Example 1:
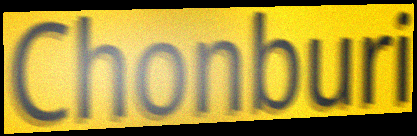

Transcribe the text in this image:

Chonburi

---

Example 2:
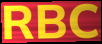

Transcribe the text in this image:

RBC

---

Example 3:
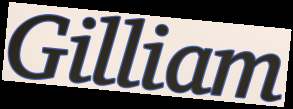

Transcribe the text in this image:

Gilliam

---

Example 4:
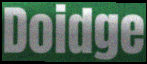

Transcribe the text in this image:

Doidge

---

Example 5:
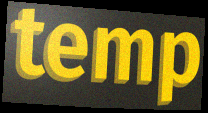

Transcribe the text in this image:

temp